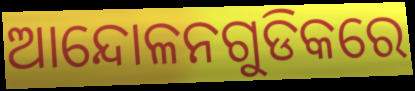
ଆନ୍ଦୋଳନଗୁଡିକରେ